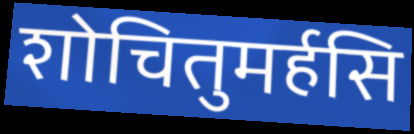
शोचितुमर्हसि